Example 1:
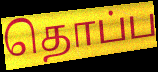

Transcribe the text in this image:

தொப்ப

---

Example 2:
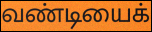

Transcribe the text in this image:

வண்டியைக்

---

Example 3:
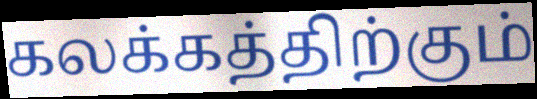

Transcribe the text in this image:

கலக்கத்திற்கும்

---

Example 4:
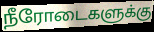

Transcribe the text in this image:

நீரோடைகளுக்கு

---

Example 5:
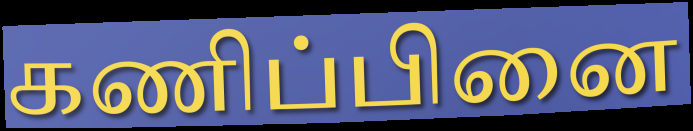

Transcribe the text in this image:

கணிப்பினை